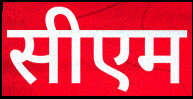
सीएम